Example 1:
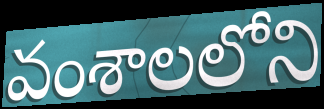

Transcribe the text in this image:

వంశాలలోని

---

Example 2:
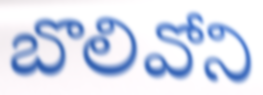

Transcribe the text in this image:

బొలివోని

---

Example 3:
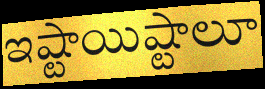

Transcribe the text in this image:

ఇష్టాయిష్టాలూ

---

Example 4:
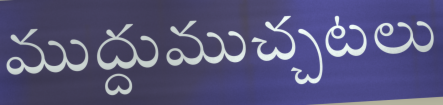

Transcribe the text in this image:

ముద్దుముచ్చటలు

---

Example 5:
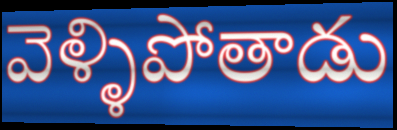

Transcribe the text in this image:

వెళ్ళిపోతాడు